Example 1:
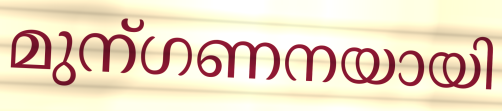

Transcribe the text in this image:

മുന്ഗണനയായി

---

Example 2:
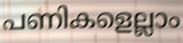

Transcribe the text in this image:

പണികളെല്ലാം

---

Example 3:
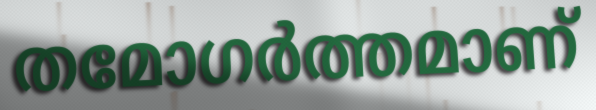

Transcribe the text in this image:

തമോഗർത്തമാണ്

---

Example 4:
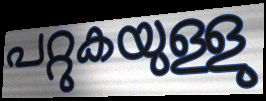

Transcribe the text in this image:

പറ്റുകയുള്ളു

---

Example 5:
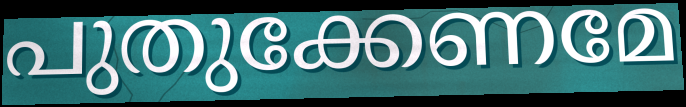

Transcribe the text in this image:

പുതുക്കേണമേ